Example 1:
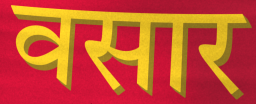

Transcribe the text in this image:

वसार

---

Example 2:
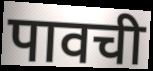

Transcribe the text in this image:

पावची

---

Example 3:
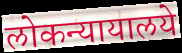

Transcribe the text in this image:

लोकन्यायालये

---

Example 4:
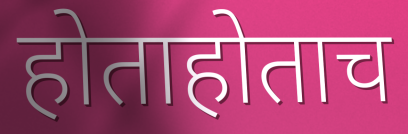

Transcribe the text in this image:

होताहोताच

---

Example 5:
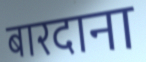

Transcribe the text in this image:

बारदाना